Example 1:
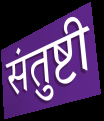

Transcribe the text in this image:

संतुष्टी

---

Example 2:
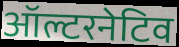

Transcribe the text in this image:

ऑल्टरनेटिव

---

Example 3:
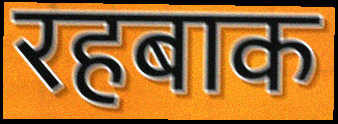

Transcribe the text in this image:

रहबाक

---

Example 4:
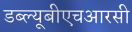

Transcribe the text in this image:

डब्ल्यूबीएचआरसी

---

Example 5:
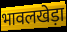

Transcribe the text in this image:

भावलखेड़ा